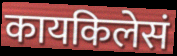
कायकिलेसं